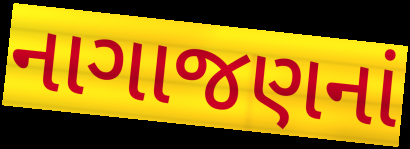
નાગાજણનાં